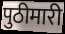
पुठीमारी